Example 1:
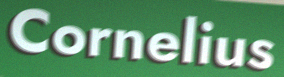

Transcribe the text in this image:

Cornelius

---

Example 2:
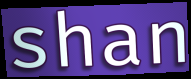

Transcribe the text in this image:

shan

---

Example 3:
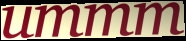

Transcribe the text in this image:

ummm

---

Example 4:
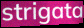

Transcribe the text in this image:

strigata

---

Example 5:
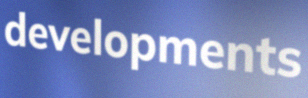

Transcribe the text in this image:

developments